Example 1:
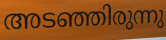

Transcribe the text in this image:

അടഞ്ഞിരുന്നു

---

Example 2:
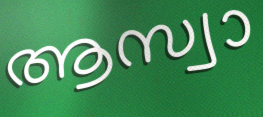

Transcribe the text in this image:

ആസ്വാ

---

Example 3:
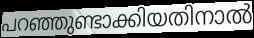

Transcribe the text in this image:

പറഞ്ഞുണ്ടാക്കിയതിനാൽ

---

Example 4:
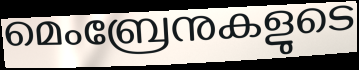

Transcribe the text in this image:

മെംബ്രേനുകളുടെ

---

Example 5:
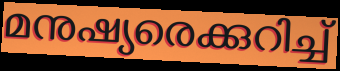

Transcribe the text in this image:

മനുഷ്യരെക്കുറിച്ച്